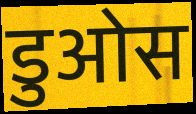
डुओस